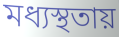
মধ্যস্থতায়